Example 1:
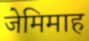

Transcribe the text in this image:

जेमिमाह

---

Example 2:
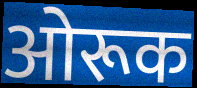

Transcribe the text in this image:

ओरूक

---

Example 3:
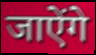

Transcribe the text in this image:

जाऐंगे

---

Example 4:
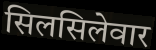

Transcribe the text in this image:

सिलसिलेवार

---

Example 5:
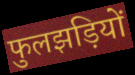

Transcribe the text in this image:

फुलझड़ियों